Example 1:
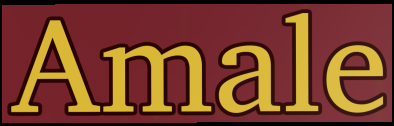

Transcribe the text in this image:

Amale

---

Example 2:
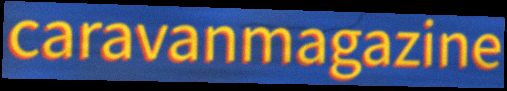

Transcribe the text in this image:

caravanmagazine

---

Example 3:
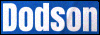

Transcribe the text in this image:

Dodson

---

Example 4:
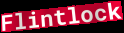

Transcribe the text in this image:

Flintlock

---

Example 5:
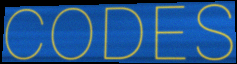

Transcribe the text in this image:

CODES